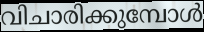
വിചാരിക്കുമ്പോൾ